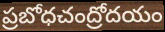
ప్రబోధచంద్రోదయం